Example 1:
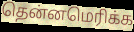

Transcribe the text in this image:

தென்னமெரிக்க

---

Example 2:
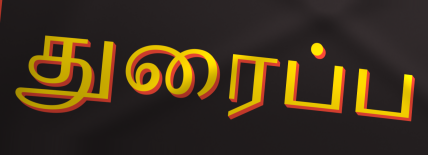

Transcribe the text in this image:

துரைப்ப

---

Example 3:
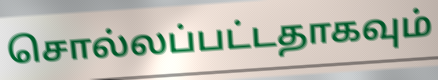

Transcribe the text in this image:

சொல்லப்பட்டதாகவும்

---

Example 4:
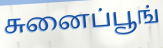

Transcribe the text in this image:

சுனைப்பூங்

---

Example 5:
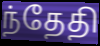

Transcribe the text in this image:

ந்தேதி